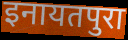
इनायतपुरा